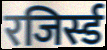
रजिर्स्ड